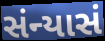
સંન્યાસં